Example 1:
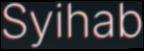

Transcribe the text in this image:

Syihab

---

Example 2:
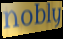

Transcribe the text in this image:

nobly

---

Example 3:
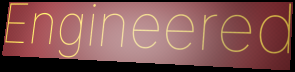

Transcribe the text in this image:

Engineered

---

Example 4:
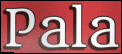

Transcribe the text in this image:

Pala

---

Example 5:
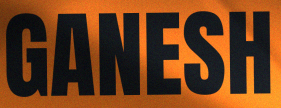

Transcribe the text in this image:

GANESH